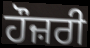
ਹੌਜ਼ਰੀ